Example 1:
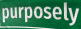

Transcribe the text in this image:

purposely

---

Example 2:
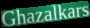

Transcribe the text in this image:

Ghazalkars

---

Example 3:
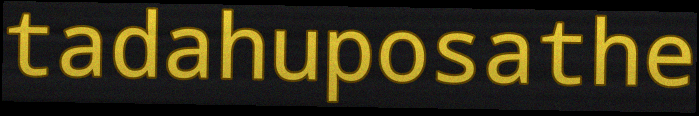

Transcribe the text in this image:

tadahuposathe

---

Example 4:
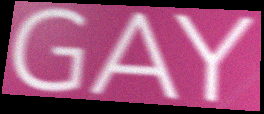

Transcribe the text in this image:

GAY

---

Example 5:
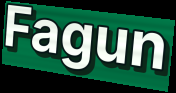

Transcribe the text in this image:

Fagun